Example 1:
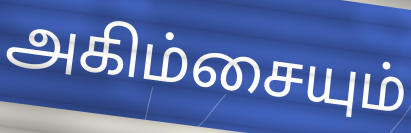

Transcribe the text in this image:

அகிம்சையும்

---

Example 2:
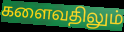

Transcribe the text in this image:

களைவதிலும்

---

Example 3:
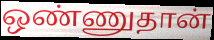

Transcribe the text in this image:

ஒண்ணுதான்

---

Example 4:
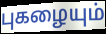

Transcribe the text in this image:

புகழையும்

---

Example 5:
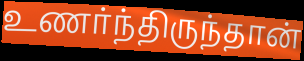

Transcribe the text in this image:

உணர்ந்திருந்தான்